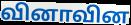
வினாவின